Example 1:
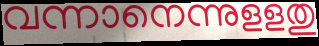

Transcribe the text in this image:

വന്നാനെന്നുളളതു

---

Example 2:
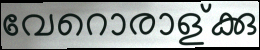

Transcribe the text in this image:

വേറൊരാള്ക്കു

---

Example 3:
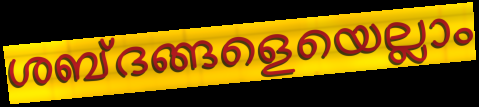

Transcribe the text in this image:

ശബ്ദങ്ങളെയെല്ലാം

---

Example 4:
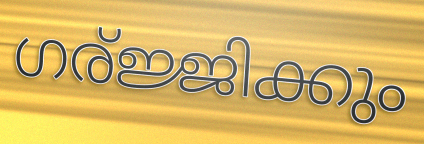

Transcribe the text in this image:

ഗര്ജ്ജിക്കും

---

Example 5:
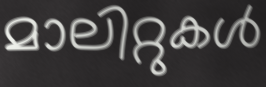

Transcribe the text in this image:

മാലിറ്റുകൾ